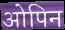
ओपिन